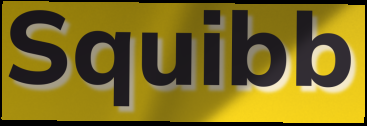
Squibb